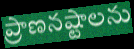
ప్రాణనష్టాలను